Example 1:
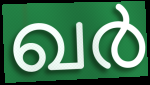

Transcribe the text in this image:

ഖർ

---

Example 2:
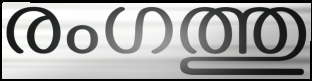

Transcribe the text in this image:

രംഗത്തു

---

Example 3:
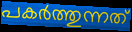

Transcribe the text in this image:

പകർത്തുന്നത്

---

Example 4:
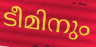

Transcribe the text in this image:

ടീമിനും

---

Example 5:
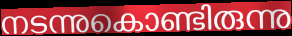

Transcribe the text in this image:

നടന്നുകൊണ്ടിരുന്നു